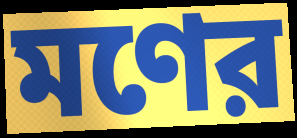
মণের